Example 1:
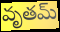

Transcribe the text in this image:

వృతమ్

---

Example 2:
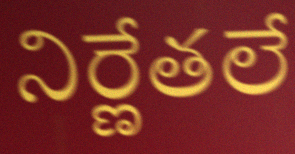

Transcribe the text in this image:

నిర్ణేతలే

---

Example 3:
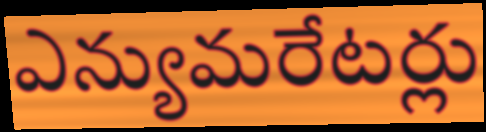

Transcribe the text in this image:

ఎన్యుమరేటర్లు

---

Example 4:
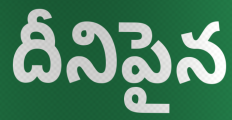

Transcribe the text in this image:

దీనిపైన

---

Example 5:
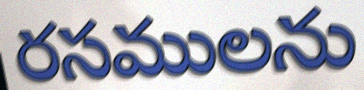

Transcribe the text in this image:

రసములను